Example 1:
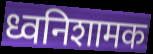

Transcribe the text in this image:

ध्वनिशामक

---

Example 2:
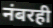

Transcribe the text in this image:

नंबरही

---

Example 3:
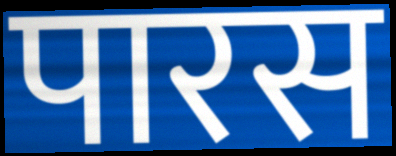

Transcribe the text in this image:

पारस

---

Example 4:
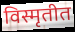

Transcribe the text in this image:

विस्मृतीत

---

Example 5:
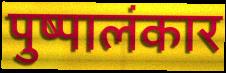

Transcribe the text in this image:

पुष्पालंकार